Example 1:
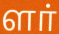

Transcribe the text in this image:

ளர்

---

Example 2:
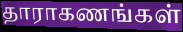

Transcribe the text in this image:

தாராகணங்கள்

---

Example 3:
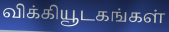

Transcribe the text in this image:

விக்கியூடகங்கள்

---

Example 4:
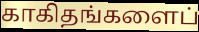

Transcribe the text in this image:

காகிதங்களைப்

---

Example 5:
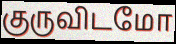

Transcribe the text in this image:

குருவிடமோ